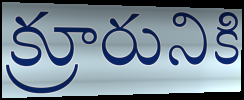
క్రూరునికి